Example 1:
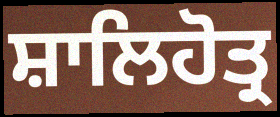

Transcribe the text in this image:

ਸ਼ਾਲਿਹੋਤ੍ਰ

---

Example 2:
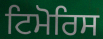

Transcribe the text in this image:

ਟਿਮੋਰਿਸ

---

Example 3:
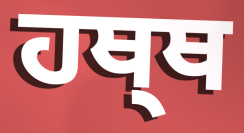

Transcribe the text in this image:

ਹਥ੍ਥ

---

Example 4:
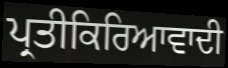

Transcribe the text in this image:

ਪ੍ਰਤੀਕਿਰਿਆਵਾਦੀ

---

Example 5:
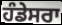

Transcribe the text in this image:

ਹੰਡੇਸਰਾ